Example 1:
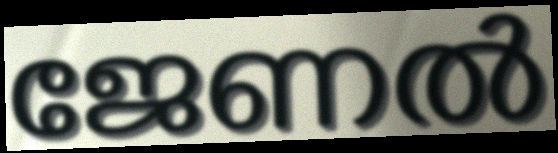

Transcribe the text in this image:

ജേണൽ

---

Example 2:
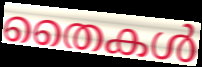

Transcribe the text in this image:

തൈകൾ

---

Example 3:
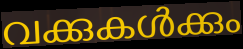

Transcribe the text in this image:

വക്കുകൾക്കും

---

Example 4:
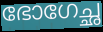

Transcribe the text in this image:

ഭോഗേച്ഛ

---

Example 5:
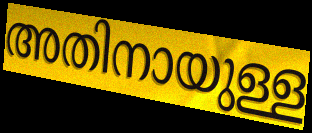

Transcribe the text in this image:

അതിനായുള്ള